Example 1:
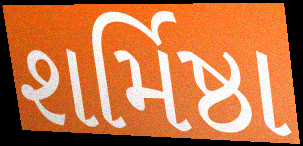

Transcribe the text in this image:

શર્મિષ્ઠા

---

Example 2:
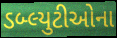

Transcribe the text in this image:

ડબ્લ્યુટીઓના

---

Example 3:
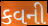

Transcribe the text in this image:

કવની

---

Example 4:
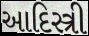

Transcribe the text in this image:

આદિસ્ત્રી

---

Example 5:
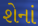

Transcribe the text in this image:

શેનાં